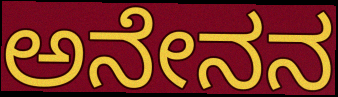
ಅನೇನನ